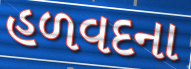
હળવદના